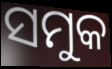
ସମୁକ